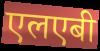
एलएबी